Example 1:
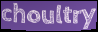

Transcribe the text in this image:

choultry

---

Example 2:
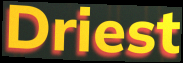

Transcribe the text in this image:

Driest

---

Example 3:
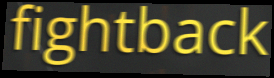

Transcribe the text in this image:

fightback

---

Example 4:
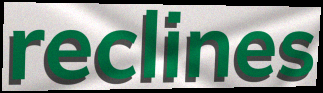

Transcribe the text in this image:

reclines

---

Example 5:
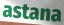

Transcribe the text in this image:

astana